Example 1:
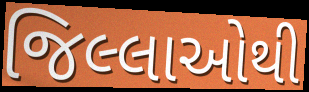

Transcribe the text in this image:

જિલ્લાઓથી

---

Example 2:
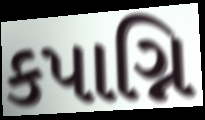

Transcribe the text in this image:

કપાગ્નિ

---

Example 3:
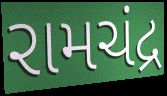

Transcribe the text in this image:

રામચંદ્ર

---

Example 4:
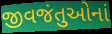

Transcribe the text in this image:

જીવજંતુઓનાં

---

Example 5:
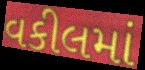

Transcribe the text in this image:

વકીલમાં